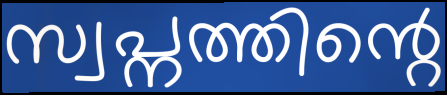
സ്വപ്നത്തിന്റെ